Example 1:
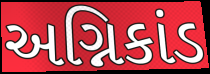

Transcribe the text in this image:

અગ્નિકાંડ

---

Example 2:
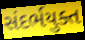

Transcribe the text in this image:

સંદર્ભયુક્ત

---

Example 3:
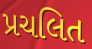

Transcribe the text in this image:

પ્રચલિત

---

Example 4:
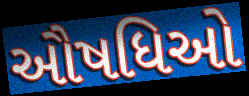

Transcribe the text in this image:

ઔષધિઓ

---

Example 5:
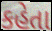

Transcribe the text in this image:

કહેતા